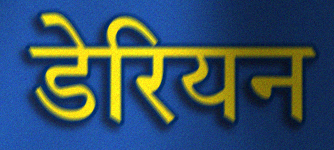
डेरियन